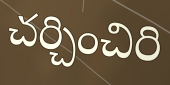
చర్చించిరి